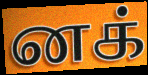
னக்